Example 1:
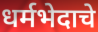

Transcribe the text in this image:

धर्मभेदाचे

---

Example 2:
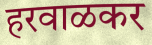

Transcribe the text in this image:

हरवाळकर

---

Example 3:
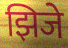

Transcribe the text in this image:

झिजे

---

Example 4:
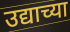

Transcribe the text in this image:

उद्याच्या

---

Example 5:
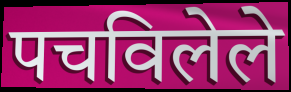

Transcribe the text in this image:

पचविलेले